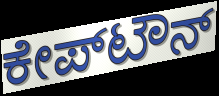
ಕೇಪ್‌ಟೌನ್